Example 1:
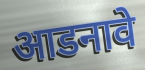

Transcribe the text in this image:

आडनावे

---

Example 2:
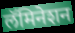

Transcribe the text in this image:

लॅमिनेशन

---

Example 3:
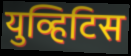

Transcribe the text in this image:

युव्हिटिस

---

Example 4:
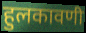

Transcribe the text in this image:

हुलकावणी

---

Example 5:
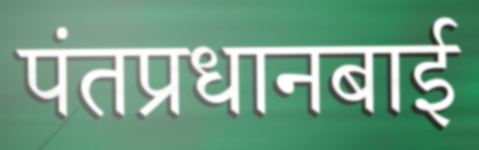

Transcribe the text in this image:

पंतप्रधानबाई